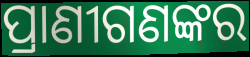
ପ୍ରାଣୀଗଣଙ୍କର